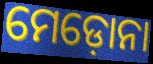
ମେଡ଼ୋନା